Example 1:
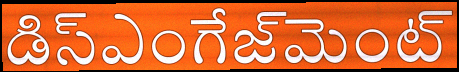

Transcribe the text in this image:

డిస్ఎంగేజ్‌మెంట్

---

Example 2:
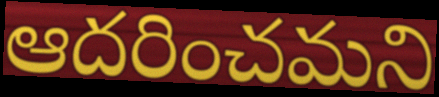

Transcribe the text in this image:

ఆదరించమని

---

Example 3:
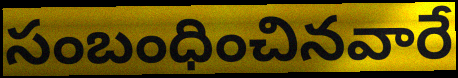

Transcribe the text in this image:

సంబంధించినవారే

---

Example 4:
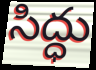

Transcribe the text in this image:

సిద్ధు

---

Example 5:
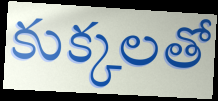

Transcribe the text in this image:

కుక్కలతో